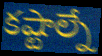
కష్టాల్నే